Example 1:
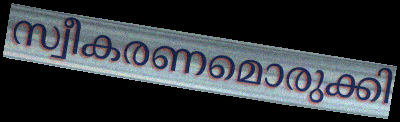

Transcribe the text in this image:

സ്വീകരണമൊരുക്കി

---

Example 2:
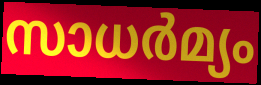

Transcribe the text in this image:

സാധർമ്യം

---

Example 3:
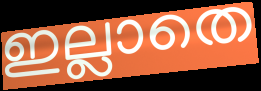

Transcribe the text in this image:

ഇല്ലാതെ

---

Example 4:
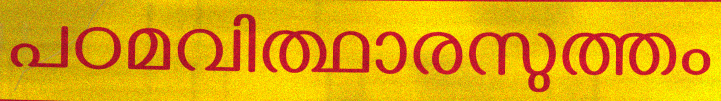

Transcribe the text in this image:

പഠമവിത്ഥാരസുത്തം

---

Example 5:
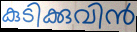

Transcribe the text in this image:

കുടിക്കുവിൻ